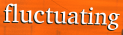
fluctuating